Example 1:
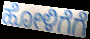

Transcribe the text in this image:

ಹೋಳಿಗೆಗೆ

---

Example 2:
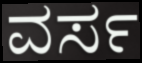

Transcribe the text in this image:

ವರ್ಸ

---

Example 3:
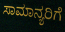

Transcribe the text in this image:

ಸಾಮಾನ್ಯರಿಗೆ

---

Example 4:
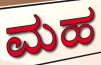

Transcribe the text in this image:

ಮಹ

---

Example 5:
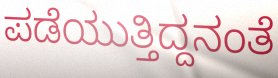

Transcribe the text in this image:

ಪಡೆಯುತ್ತಿದ್ದನಂತೆ